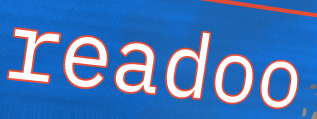
readoo